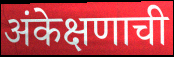
अंकेक्षणाची